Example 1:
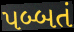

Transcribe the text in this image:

પબ્બતં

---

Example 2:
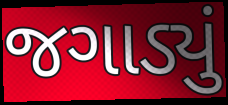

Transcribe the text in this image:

જગાડ્યું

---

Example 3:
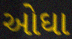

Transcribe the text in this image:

ઓઘા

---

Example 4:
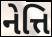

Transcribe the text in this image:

નેત્તિ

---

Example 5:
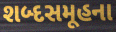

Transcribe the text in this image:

શબ્દસમૂહના